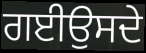
ਗਈਉਸਦੇ